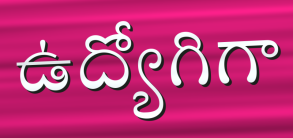
ఉద్యోగిగా